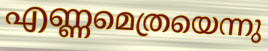
എണ്ണമെത്രയെന്നു